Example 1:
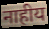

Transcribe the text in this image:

नाहीय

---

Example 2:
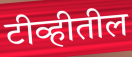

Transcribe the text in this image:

टीव्हीतील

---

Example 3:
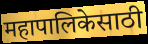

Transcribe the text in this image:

महापालिकेसाठी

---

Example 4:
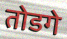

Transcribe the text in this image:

तोडगे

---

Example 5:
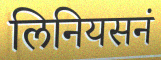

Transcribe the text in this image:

लिनियसनं